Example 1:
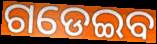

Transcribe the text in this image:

ଗଡେଇବ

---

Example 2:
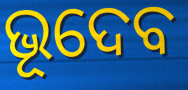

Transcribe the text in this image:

ଭୂଦେବ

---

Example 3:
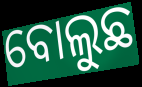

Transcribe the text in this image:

ବୋଲୁଛ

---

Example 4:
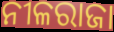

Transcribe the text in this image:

ନୀଳରାଜା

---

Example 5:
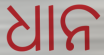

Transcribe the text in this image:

ଧାନ